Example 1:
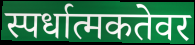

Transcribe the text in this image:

स्पर्धात्मकतेवर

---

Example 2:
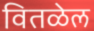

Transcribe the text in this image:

वितळेल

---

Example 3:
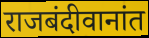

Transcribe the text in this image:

राजबंदीवानांत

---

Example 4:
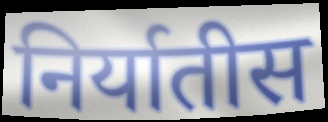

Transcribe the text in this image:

निर्यातीस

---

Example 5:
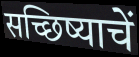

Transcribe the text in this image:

सच्छिष्याचें